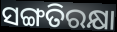
ସଙ୍ଗତିରକ୍ଷା